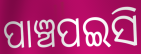
ପାଞ୍ଚପଇସି